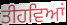
ਤੀਹਵਿਆਂ